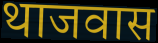
थाजवास